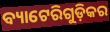
ବ୍ୟାଟେରିଗୁଡ଼ିକର